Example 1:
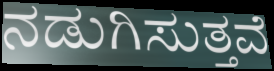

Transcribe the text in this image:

ನಡುಗಿಸುತ್ತವೆ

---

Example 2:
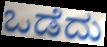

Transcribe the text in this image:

ಒಡೆದು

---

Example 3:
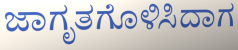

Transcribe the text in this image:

ಜಾಗೃತಗೊಳಿಸಿದಾಗ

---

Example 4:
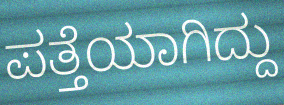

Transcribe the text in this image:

ಪತ್ತೆಯಾಗಿದ್ದು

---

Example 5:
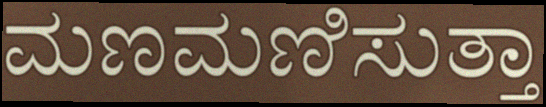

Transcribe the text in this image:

ಮಣಮಣಿಸುತ್ತಾ